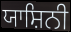
ਯਾਸ਼ਿਨੀ